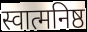
स्वात्मनिष्ठ